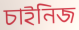
চাইনিজ